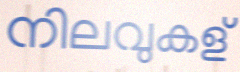
നിലവുകള്